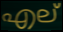
എല്